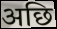
अछि